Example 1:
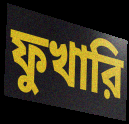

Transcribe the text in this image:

ফুখারি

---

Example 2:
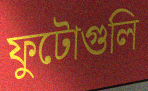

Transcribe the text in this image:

ফুটোগুলি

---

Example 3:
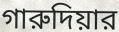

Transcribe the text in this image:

গারুদিয়ার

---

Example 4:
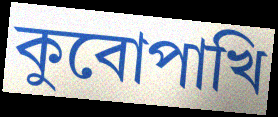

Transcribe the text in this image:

কুবোপাখি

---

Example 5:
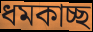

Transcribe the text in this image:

ধমকাচ্ছ